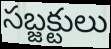
సబ్జక్టులు